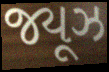
જ્યૂઝ